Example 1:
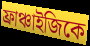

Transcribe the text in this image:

ফ্রাঞ্চাইজিকে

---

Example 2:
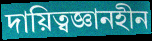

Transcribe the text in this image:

দায়িত্বজ্ঞানহীন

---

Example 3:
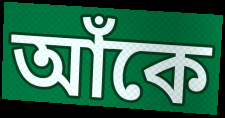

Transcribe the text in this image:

আঁকে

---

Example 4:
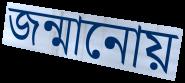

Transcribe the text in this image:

জন্মানোয়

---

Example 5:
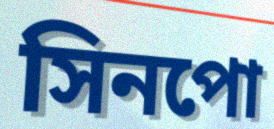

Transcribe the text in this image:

সিনপো